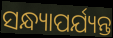
ସନ୍ଧ୍ୟାପର୍ଯ୍ୟନ୍ତ